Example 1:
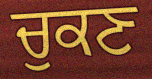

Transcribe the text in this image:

ਚੁਕਣ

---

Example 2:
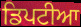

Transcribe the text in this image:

ਡਿਪਟੀਆ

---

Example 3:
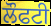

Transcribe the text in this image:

ਲੌਫਟੀ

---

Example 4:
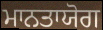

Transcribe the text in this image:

ਮਾਨਤਾਯੋਗ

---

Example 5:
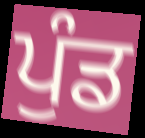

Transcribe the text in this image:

ਪੁੰਡ